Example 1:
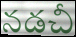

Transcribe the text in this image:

నడచీ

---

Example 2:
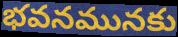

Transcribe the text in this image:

భవనమునకు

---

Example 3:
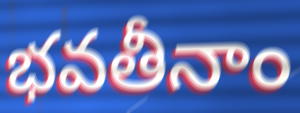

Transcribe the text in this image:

భవతీనాం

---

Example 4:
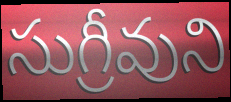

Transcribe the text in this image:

సుగ్రీవుని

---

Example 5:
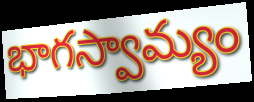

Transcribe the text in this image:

భాగస్వామ్యం